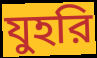
যুহরি